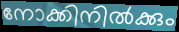
നോക്കിനിൽക്കും